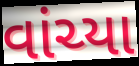
વાંચ્યા